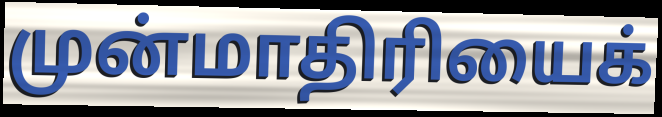
முன்மாதிரியைக்